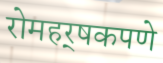
रोमहर्षकपणे